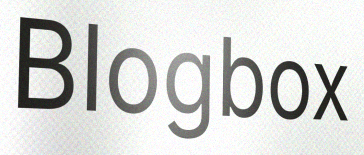
Blogbox